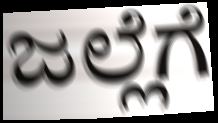
ಜಲ್ಲೆಗೆ